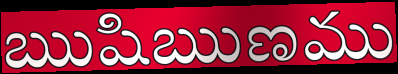
ఋషిఋణము